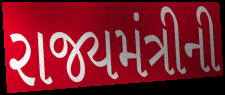
રાજ્યમંત્રીની